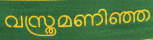
വസ്ത്രമണിഞ്ഞ